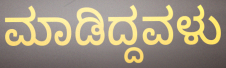
ಮಾಡಿದ್ದವಳು